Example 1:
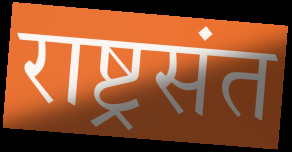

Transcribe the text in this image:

राष्ट्रसंत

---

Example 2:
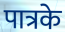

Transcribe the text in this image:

पात्रके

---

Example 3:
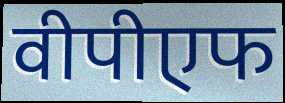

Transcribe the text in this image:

वीपीएफ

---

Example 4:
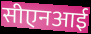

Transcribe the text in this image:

सीएनआई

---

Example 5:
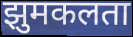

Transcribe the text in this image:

झुमकलता